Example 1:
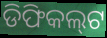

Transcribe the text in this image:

ଡିଫିକଲ୍‌ଟ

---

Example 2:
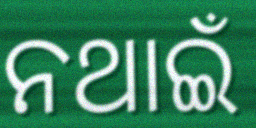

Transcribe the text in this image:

ନଥାଇଁ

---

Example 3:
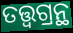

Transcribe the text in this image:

ତତ୍ତ୍ୱଗ୍ରନ୍ଥ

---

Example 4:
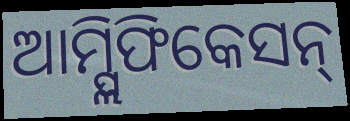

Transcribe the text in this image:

ଆମ୍ପ୍ଲିଫିକେସନ୍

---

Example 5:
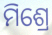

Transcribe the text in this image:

ମିଶ୍ରେ